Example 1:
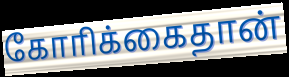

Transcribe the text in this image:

கோரிக்கைதான்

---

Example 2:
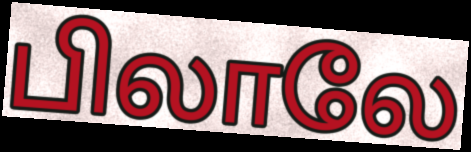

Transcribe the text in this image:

பிலாலே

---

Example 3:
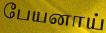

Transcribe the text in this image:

பேயனாய்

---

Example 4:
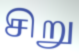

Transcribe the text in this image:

சிறு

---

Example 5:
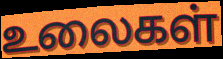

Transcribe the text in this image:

உலைகள்